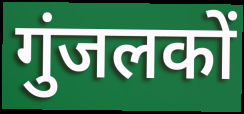
गुंजलकों